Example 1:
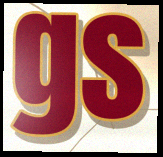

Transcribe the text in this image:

gs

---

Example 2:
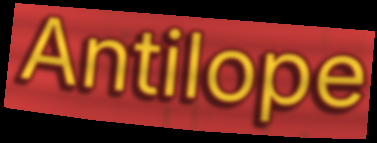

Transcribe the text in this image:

Antilope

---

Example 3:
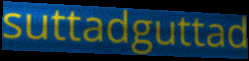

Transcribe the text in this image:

suttadguttad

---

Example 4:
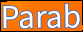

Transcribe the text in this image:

Parab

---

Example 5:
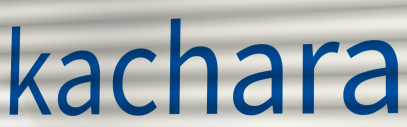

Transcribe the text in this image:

kachara